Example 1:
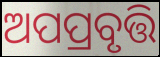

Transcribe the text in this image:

ଅପପ୍ରବୃତ୍ତି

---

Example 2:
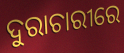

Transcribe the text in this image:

ଦୁରାଚାରୀରେ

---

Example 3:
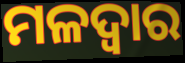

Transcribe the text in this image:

ମଳଦ୍ଵାର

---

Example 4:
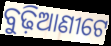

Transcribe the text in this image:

ବୁଢ଼ିଆଣୀଟେ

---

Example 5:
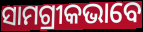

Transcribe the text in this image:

ସାମଗ୍ରୀକଭାବେ